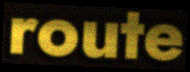
route